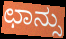
ಛಾನ್ಸು